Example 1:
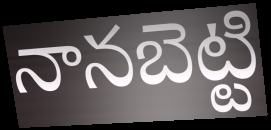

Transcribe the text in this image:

నానబెట్టి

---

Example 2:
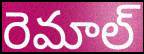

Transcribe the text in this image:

రెమాల్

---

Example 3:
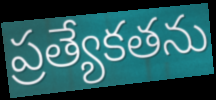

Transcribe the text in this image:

ప్రత్యేకతను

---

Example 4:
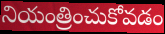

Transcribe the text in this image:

నియంత్రించుకోవడం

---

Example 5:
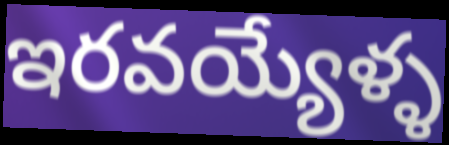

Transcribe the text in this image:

ఇరవయ్యేళ్ళ